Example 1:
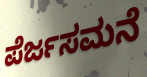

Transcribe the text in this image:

ಪೆರ್ಜಸಮನೆ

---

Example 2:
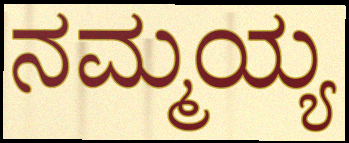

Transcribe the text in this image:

ನಮ್ಮಯ್ಯ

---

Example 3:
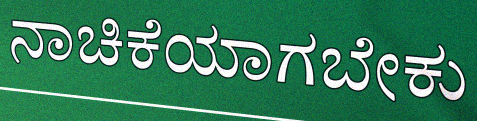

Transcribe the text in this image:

ನಾಚಿಕೆಯಾಗಬೇಕು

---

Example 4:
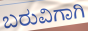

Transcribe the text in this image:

ಬರುವಿಗಾಗಿ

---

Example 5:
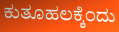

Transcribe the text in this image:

ಕುತೂಹಲಕ್ಕೆಂದು